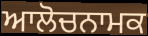
ਆਲੋਚਨਾਮਕ